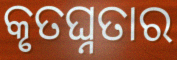
କୃତଘ୍ନତାର